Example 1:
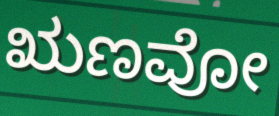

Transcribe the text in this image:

ಋಣವೋ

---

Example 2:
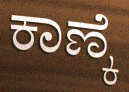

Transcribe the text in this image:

ಕಾಣ್ಕೆ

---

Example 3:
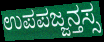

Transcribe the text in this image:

ಉಪಪಜ್ಜನ್ತಸ್ಸ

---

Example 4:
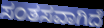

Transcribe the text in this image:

ಸಂತಸವಾಗಿದೆ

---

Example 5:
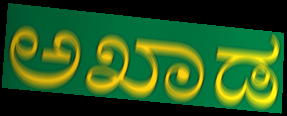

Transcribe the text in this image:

ಅಖಾಡ